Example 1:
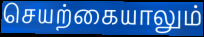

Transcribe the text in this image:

செயற்கையாலும்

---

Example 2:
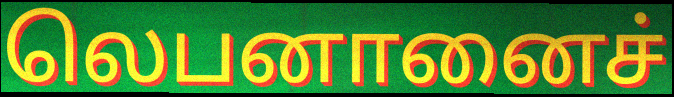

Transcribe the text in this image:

லெபனானைச்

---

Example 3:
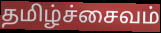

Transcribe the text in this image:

தமிழ்ச்சைவம்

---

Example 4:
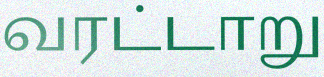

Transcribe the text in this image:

வரட்டாறு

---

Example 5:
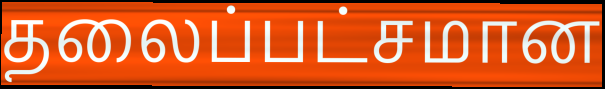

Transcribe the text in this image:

தலைப்பட்சமான